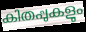
കിതപ്പുകളും